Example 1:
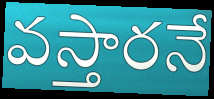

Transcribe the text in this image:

వస్తారనే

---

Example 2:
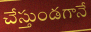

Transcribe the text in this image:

చేస్తుండగానే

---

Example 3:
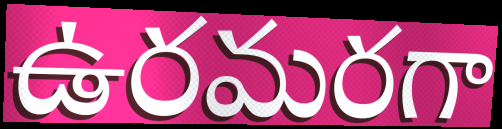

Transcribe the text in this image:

ఉరమరగా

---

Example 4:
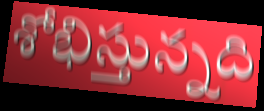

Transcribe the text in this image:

శోభిస్తున్నది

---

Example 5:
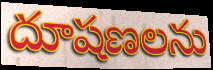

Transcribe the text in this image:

దూషణలను